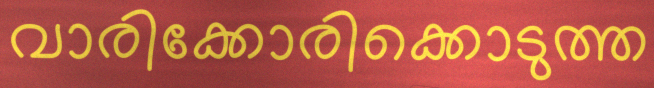
വാരിക്കോരിക്കൊടുത്ത